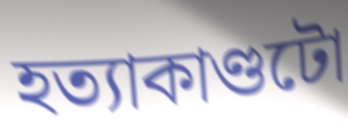
হত্যাকাণ্ডটো